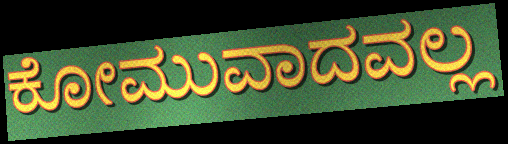
ಕೋಮುವಾದವಲ್ಲ